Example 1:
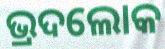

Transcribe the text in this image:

ଭ୍ରଦଲୋକ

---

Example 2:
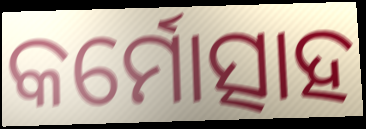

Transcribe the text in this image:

କର୍ମୋତ୍ସାହ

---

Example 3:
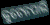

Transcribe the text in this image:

କୁଟେନପାଲି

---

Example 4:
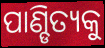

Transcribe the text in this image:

ପାଣ୍ଡିତ୍ୟକୁ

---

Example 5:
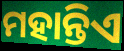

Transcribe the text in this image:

ମହାନ୍ତିଏ